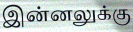
இன்னலுக்கு